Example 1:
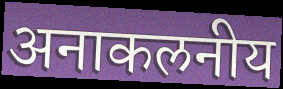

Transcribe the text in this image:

अनाकलनीय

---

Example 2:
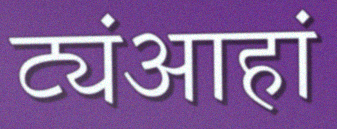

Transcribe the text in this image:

ट्यंआहां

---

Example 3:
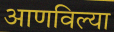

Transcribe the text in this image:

आणविल्या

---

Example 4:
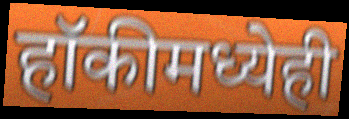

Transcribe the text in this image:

हॉकीमध्येही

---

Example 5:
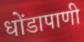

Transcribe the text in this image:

धोंडापाणी